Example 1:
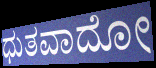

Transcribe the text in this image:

ಧುತವಾದೋ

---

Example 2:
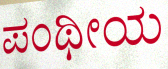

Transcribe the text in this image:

ಪಂಥೀಯ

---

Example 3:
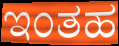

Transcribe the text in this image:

ಇಂತಹ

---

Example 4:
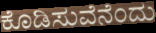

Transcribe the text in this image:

ಕೊಡಿಸುವೆನೆಂದು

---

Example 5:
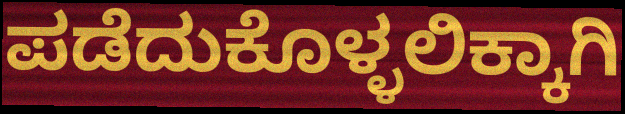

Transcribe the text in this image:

ಪಡೆದುಕೊಳ್ಳಲಿಕ್ಕಾಗಿ